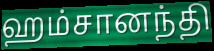
ஹம்சானந்தி